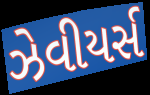
ઝેવીયર્સ